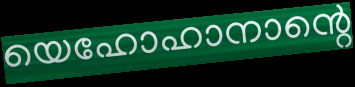
യെഹോഹാനാന്റെ